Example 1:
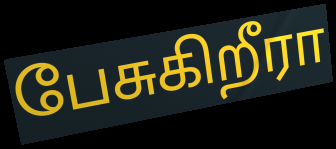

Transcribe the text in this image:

பேசுகிறீரா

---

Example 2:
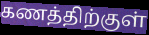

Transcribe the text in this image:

கணத்திற்குள்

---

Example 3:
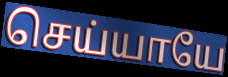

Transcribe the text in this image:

செய்யாயே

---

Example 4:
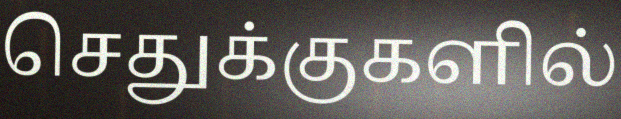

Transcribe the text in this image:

செதுக்குகளில்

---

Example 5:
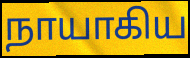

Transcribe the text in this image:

நாயாகிய